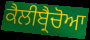
ਕੈਲੀਬ੍ਰੈਚੋਆ